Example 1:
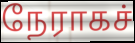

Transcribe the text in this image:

நேராகச்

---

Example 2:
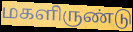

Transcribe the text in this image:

மகளிருண்டு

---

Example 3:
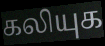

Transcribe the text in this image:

கலியுக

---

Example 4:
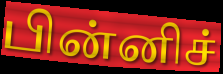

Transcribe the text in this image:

பின்னிச்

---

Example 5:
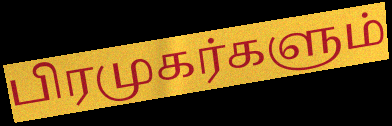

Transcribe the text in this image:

பிரமுகர்களும்